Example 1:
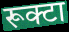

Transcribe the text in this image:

रूक्टा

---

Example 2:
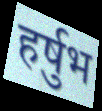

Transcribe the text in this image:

हर्षुभ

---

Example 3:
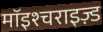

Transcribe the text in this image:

मॉइश्चराइज़्ड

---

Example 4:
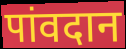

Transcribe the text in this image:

पांवदान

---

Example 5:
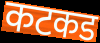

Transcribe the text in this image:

कटकड